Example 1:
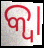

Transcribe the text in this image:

କ୍ଵା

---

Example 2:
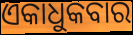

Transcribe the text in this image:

ଏକାଧୁକବାର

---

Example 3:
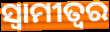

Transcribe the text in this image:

ସ୍ଵାମୀତ୍ୱର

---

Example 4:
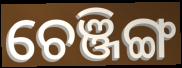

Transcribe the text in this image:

ଚେଞ୍ଜିଙ୍ଗ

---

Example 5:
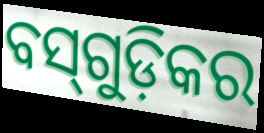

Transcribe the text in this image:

ବସ୍‌ଗୁଡ଼ିକର